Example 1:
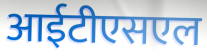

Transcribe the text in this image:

आईटीएसएल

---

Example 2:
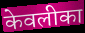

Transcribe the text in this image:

केवलीका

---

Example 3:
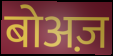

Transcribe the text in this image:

बोअज़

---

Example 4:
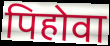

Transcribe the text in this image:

पिहोवा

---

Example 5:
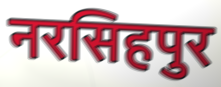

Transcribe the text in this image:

नरसिहपुर